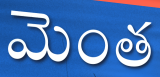
మెంత